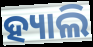
ହ୍ୟାଲି